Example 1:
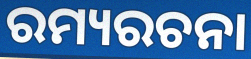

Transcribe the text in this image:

ରମ୍ୟରଚନା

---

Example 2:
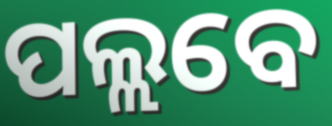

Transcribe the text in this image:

ପଲ୍ଲବେ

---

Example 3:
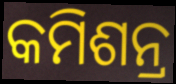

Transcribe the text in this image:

କମିଶନ୍ର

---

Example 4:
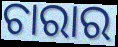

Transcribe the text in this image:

ଚାରାର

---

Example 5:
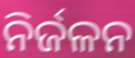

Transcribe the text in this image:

ନିର୍ଜଳନ